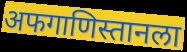
अफगाणिस्तानला